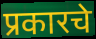
प्रकारचे